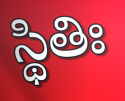
స్థితిః